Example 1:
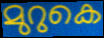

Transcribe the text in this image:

മുറുകെ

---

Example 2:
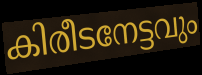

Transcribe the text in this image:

കിരീടനേട്ടവും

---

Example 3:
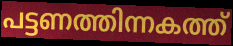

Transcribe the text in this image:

പട്ടണത്തിന്നകത്ത്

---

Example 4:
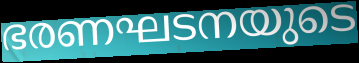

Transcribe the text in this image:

ഭരണഘടനയുടെ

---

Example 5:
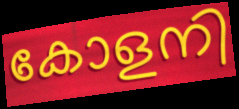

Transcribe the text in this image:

കോളനി